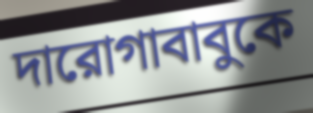
দারোগাবাবুকে